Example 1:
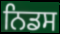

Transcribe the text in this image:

ਨਿਡਸ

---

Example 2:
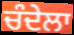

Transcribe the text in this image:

ਚੰਦੇਲਾ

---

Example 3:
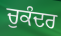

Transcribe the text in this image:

ਚੁਕੰਦਰ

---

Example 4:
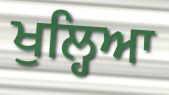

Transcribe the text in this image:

ਖੁਲ੍ਹਿਆ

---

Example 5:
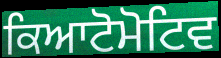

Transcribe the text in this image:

ਕਿਆਟੋਮੋਟਿਵ